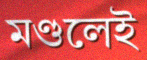
মণ্ডলেই